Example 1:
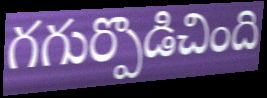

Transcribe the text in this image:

గగుర్పొడిచింది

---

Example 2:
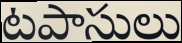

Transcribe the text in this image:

టపాసులు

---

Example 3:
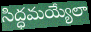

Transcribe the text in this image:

సిద్ధమయ్యేలా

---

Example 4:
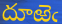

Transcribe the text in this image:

దూఱెఁ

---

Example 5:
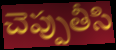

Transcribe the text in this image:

చెప్పుతీసి